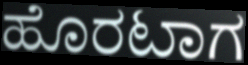
ಹೊರಟಾಗ